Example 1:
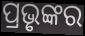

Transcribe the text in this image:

ପ୍ରଭୃଙ୍କର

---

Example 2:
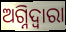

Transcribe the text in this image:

ଅଗ୍ନିଦ୍ଵାରା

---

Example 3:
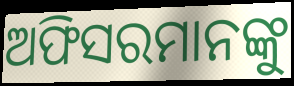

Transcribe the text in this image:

ଅଫିସରମାନଙ୍କୁ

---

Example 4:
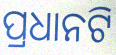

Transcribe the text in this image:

ପ୍ରଧାନଟି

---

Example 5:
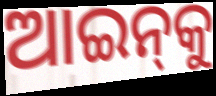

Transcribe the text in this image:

ଆଇନ୍‍କୁ